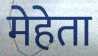
मेहेता